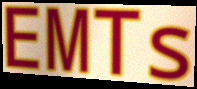
EMTs